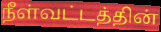
நீள்வட்டத்தின்